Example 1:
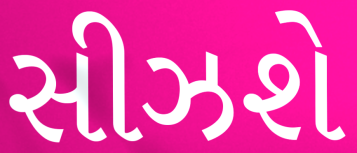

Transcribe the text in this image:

સીઝશે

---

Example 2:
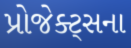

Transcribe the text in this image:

પ્રોજેક્ટ્સના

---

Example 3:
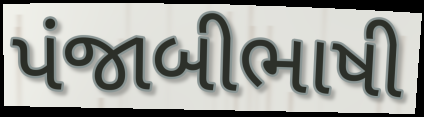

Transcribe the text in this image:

પંજાબીભાષી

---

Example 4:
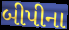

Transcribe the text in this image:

બીપીના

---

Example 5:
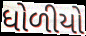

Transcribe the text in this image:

ધોળીયો